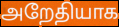
அறேதியாக